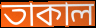
তাকাল